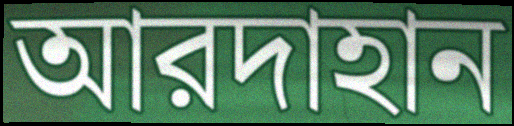
আরদাহান